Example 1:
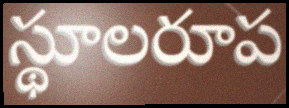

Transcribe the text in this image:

స్థూలరూప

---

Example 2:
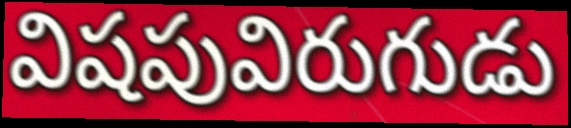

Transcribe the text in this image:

విషపువిరుగుడు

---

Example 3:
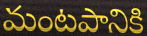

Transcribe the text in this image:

మంటపానికి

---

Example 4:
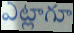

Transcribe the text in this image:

ఎట్లాగూ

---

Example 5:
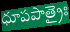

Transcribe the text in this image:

ధూపపాత్రైః